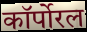
कॉर्पोरल